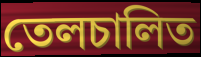
তেলচালিত